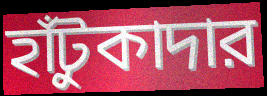
হাঁটুকাদার